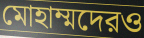
মোহাম্মদেরও